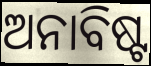
ଅନାବିଷ୍ଟ